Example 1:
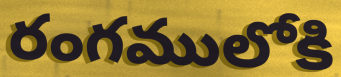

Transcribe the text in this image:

రంగములోకి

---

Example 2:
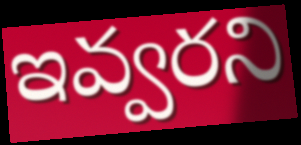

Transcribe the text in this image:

ఇవ్వరని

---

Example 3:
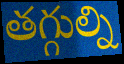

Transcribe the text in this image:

తగ్గుల్ని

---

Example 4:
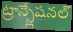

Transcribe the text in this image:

ట్రాన్స్లేషనల్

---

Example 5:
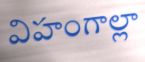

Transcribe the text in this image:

విహంగాల్లా